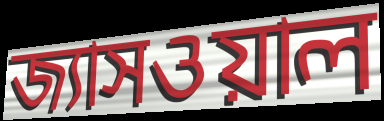
জ্যাসওয়াল